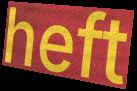
heft